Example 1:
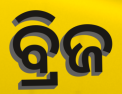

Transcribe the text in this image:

ବ୍ରିଜ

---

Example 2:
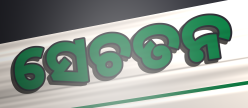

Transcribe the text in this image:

ସେଚତନ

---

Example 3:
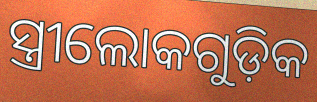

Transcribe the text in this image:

ସ୍ତ୍ରୀଲୋକଗୁଡ଼ିକ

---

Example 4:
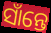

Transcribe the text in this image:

ସାଁନ୍ତେ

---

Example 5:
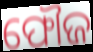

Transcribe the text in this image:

ଫୌଜ